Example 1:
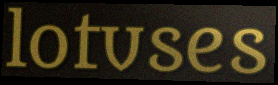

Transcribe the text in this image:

lotuses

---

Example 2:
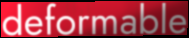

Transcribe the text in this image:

deformable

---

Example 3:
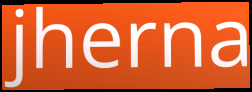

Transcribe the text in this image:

jherna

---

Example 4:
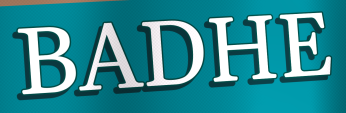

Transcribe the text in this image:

BADHE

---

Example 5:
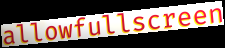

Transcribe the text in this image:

allowfullscreen